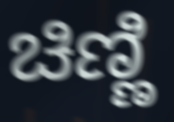
ಚಿಣ್ಣಿ